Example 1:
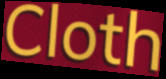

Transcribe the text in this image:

Cloth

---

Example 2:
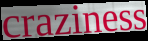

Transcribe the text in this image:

craziness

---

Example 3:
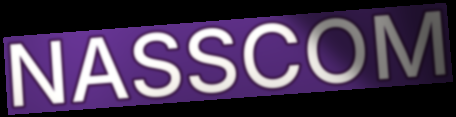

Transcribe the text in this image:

NASSCOM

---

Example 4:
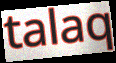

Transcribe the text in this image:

talaq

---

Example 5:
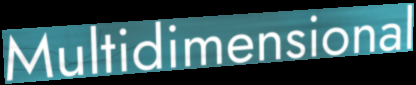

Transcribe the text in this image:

Multidimensional